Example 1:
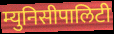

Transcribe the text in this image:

म्युनिसीपालिटी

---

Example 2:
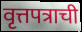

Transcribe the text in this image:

वृत्तपत्राची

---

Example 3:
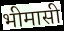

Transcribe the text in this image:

भीमासी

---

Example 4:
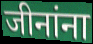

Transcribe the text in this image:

जीनांना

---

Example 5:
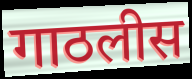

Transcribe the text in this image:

गाठलीस